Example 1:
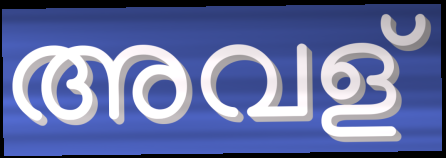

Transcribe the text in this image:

അവള്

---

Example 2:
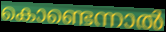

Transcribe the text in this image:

കൊണ്ടെന്നാൽ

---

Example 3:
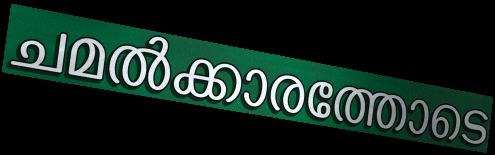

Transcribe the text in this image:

ചമൽക്കാരത്തോടെ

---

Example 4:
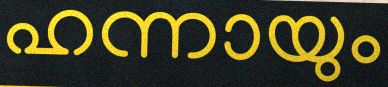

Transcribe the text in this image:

ഹന്നായും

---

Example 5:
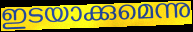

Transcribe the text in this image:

ഇടയാക്കുമെന്നു